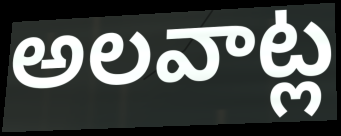
అలవాట్ల